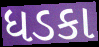
ધડકા